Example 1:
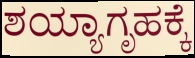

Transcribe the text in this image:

ಶಯ್ಯಾಗೃಹಕ್ಕೆ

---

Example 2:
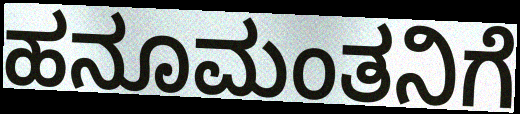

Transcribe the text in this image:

ಹನೂಮಂತನಿಗೆ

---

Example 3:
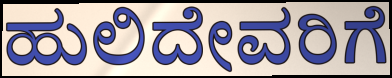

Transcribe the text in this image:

ಹುಲಿದೇವರಿಗೆ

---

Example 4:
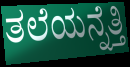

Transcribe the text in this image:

ತಲೆಯನ್ನೆತ್ತಿ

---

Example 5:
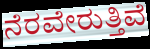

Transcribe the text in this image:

ನೆರವೇರುತ್ತಿವೆ